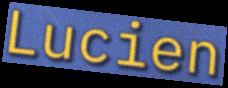
Lucien